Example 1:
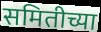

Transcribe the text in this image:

समितीच्या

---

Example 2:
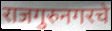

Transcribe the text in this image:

राजगुरुनगरचे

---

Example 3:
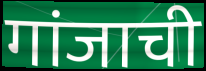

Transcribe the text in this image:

गांजाची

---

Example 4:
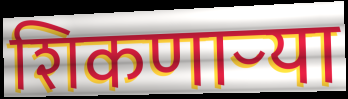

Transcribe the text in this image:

शिकणाऱ्या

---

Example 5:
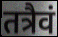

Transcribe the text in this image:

तत्रैवं